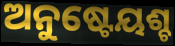
ଅନୁଷ୍ଟେୟଶ୍ଚ